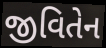
જીવિતેન